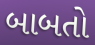
બાબતો